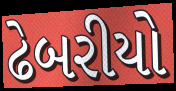
ઢેબરીયો